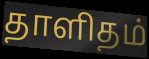
தாளிதம்